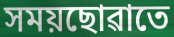
সময়ছোৱাতে